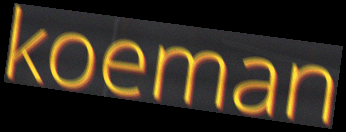
koeman